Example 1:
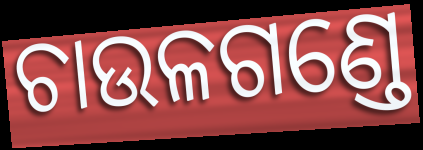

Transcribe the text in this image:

ଚାଉଳଗଣ୍ଡେ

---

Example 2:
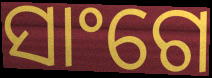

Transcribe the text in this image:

ସାଂଗେ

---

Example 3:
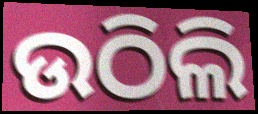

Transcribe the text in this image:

ଉଠିଲି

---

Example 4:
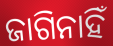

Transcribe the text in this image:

ଜାଗିନାହିଁ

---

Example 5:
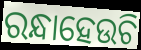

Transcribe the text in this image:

ରନ୍ଧାହେଉଚି